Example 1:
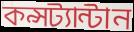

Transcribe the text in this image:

কন্সট্যান্টান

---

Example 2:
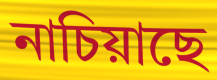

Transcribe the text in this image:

নাচিয়াছে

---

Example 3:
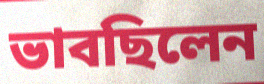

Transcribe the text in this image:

ভাবছিলেন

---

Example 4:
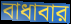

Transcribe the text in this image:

বাধাবার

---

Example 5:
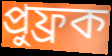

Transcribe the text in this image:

প্রুফ্রক